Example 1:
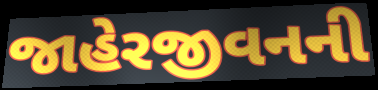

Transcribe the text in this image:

જાહેરજીવનની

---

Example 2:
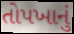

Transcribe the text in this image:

તોપખાનું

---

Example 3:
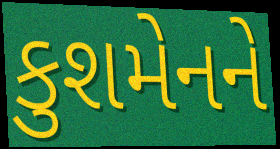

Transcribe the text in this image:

કુશમેનને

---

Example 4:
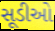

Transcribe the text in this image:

સૂડીઓ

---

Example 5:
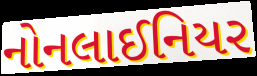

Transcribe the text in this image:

નોનલાઈનિયર